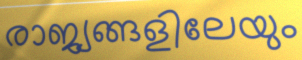
രാജ്യങ്ങളിലേയും